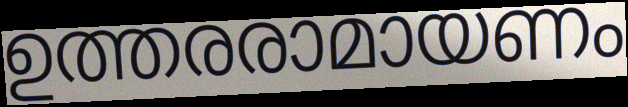
ഉത്തരരാമായണം